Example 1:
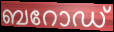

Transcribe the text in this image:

ബറോഡ്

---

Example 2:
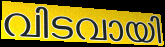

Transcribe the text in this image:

വിടവായി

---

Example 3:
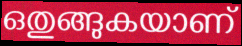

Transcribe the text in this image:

ഒതുങ്ങുകയാണ്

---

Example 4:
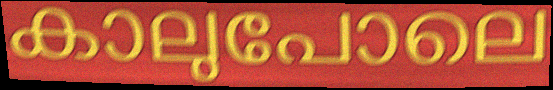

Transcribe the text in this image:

കാലുപോലെ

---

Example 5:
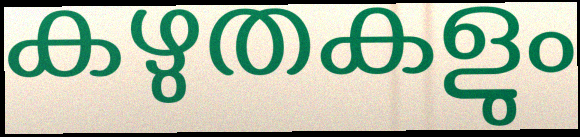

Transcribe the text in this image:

കഴുതകളും